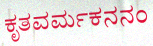
ಕೃತವರ್ಮಕನನಂ